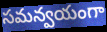
సమన్వయంగా